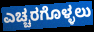
ಎಚ್ಚರಗೊಳ್ಳಲು